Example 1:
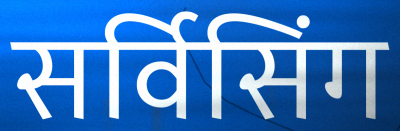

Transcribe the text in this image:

सर्विसिंग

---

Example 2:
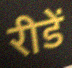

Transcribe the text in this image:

रीडें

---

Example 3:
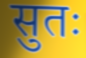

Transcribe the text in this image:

सुतः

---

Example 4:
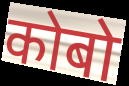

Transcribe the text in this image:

कोबो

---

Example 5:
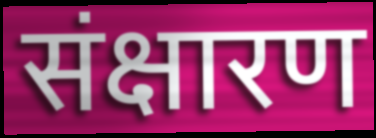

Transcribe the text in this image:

संक्षारण